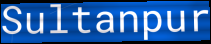
Sultanpur